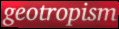
geotropism